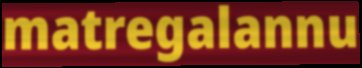
matregalannu